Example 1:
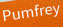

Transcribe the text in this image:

Pumfrey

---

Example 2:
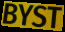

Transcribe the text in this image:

BYST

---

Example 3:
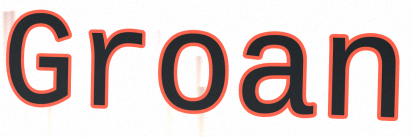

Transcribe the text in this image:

Groan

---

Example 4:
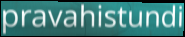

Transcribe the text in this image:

pravahistundi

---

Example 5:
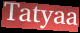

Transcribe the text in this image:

Tatyaa